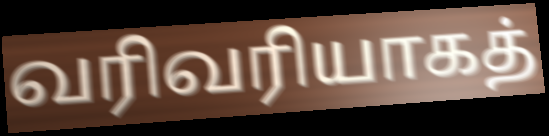
வரிவரியாகத்